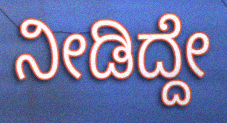
ನೀಡಿದ್ದೇ